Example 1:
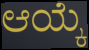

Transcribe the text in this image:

ಆಯ್ಕೆ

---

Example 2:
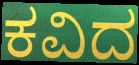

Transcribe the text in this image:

ಕವಿದ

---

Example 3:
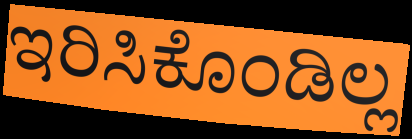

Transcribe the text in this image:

ಇರಿಸಿಕೊಂಡಿಲ್ಲ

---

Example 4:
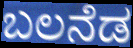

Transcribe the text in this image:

ಬಲನೆಡ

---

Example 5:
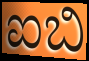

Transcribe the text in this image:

ಐಬಿ